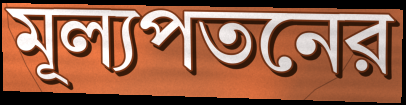
মূল্যপতনের